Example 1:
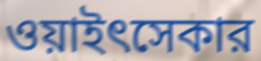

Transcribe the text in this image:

ওয়াইৎসেকার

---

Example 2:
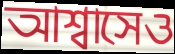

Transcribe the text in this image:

আশ্বাসেও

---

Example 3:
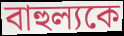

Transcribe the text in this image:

বাহুল্যকে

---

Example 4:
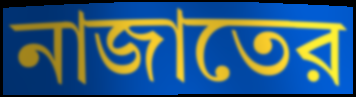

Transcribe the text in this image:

নাজাতের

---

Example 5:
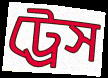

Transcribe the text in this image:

ট্রেস